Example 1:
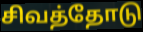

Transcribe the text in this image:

சிவத்தோடு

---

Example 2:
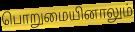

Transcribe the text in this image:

பொறுமையினாலும்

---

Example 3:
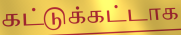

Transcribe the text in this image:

கட்டுக்கட்டாக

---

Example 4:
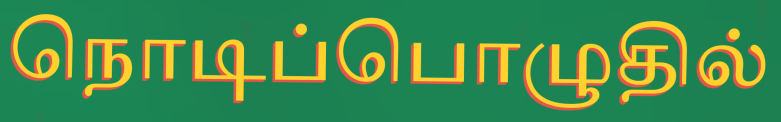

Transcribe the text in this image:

நொடிப்பொழுதில்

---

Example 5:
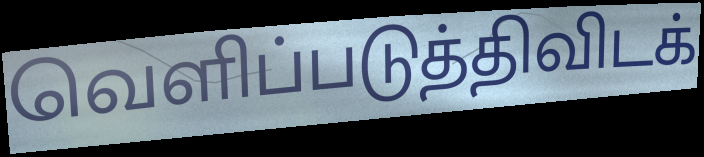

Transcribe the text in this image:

வெளிப்படுத்திவிடக்